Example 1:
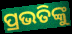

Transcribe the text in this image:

ପ୍ରଭତିଙ୍କୁ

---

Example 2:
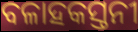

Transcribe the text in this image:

ବଳାହକସ୍ତନୀ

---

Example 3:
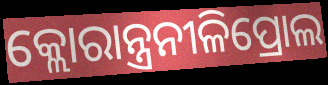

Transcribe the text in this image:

କ୍ଲୋରାନ୍ତ୍ରନୀଳିପ୍ରୋଲ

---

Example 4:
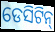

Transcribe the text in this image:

ଡେସିଟିନ୍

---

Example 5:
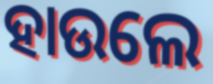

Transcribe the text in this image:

ହାଉଲେ